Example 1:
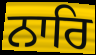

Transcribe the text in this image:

ਨਾਰਿ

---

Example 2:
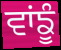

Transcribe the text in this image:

ਵਾਂਙੂੰ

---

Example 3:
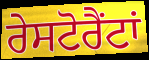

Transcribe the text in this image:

ਰੇਸਟੋਰੈਂਟਾਂ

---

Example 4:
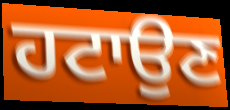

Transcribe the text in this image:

ਹਟਾਉਣ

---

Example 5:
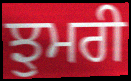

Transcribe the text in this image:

ਝੁਮਰੀ